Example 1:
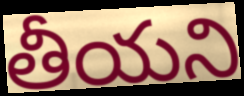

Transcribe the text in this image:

తీయని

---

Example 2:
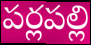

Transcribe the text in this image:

పర్లపల్లి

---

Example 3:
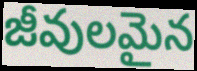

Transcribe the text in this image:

జీవులమైన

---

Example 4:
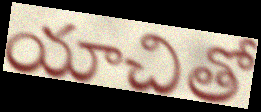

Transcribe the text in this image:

యాచితో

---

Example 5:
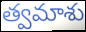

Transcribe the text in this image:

త్వమాశు